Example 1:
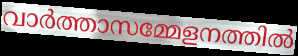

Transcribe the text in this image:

വാർത്താസമ്മേളനത്തിൽ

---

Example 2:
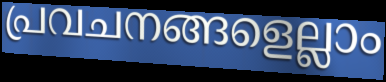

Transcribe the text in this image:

പ്രവചനങ്ങളെല്ലാം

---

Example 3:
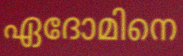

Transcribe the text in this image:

ഏദോമിനെ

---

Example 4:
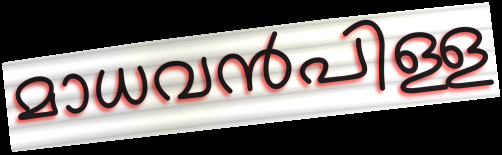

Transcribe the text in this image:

മാധവൻപിള്ള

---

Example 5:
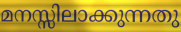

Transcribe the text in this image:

മനസ്സിലാക്കുന്നതു